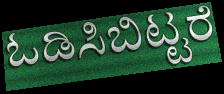
ಓಡಿಸಿಬಿಟ್ಟರೆ